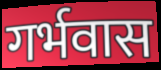
गर्भवास